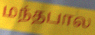
மந்தபால